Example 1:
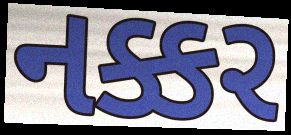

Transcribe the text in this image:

નક્કર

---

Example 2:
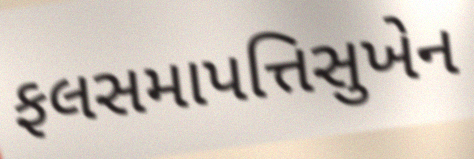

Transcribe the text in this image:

ફલસમાપત્તિસુખેન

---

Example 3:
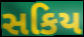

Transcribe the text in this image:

સકિય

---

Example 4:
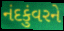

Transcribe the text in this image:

નંદકુંવરને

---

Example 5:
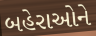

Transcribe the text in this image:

બહેરાઓને